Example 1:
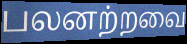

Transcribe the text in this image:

பலனற்றவை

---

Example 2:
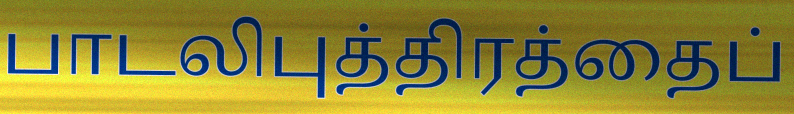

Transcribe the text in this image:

பாடலிபுத்திரத்தைப்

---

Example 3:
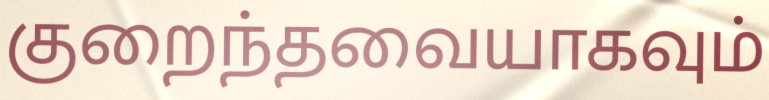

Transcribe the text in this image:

குறைந்தவையாகவும்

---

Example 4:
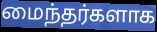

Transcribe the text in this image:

மைந்தர்களாக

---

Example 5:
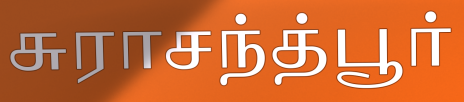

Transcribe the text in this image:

சுராசந்த்பூர்